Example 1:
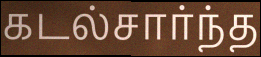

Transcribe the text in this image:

கடல்சார்ந்த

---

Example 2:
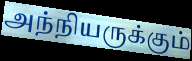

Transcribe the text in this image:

அந்நியருக்கும்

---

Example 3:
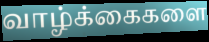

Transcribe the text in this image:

வாழ்க்கைகளை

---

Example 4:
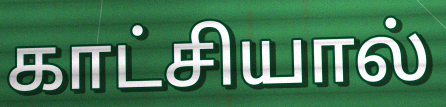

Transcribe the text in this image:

காட்சியால்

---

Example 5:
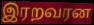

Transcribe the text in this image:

இரறவரன